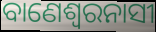
ବାଣେଶ୍ୱରନାସୀ